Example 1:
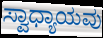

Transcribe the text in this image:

ಸ್ವಾಧ್ಯಾಯವು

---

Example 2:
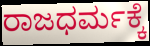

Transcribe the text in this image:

ರಾಜಧರ್ಮಕ್ಕೆ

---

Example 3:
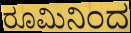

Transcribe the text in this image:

ರೂಮಿನಿಂದ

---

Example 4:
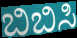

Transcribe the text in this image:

ಬಿಬಿಸಿ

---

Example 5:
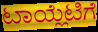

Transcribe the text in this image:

ಟಾಯ್ಲೆಟಿಗೆ